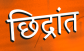
छिद्रांत